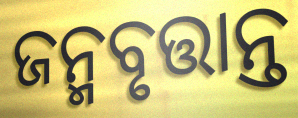
ଜନ୍ମବୃତ୍ତାନ୍ତ